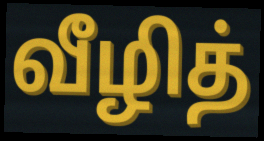
வீழித்